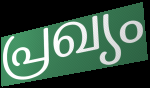
പ്രഖ്യം